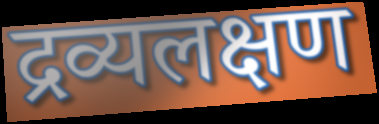
द्रव्यलक्षण